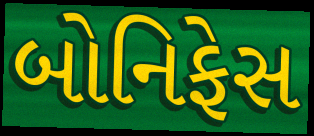
બોનિફેસ